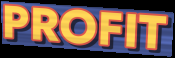
PROFIT